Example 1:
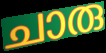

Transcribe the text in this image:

ചാരു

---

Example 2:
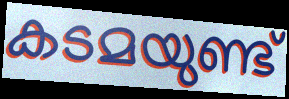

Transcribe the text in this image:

കടമയുണ്ട്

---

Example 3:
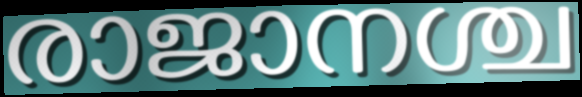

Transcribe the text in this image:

രാജാനശ്ച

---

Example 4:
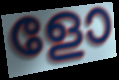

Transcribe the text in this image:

ളോ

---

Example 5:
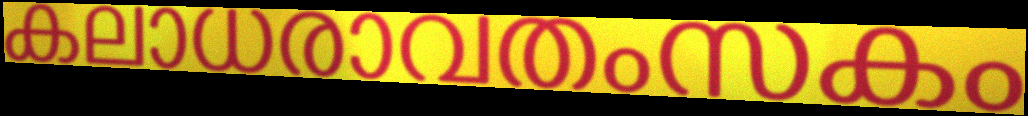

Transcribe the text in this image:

കലാധരാവതംസകം